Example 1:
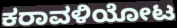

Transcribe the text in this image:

ಕರಾವಳಿಯೋಟ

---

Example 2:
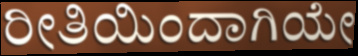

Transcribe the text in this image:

ರೀತಿಯಿಂದಾಗಿಯೇ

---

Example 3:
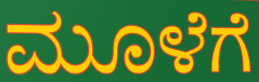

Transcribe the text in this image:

ಮೂಳೆಗೆ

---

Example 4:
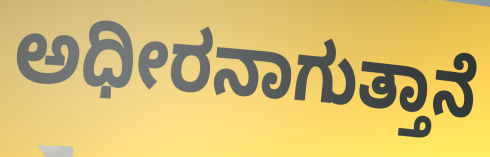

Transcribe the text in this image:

ಅಧೀರನಾಗುತ್ತಾನೆ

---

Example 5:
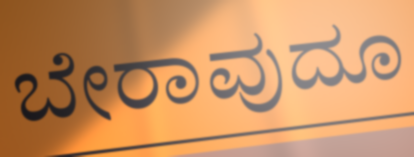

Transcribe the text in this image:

ಬೇರಾವುದೂ